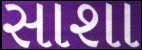
સાશા